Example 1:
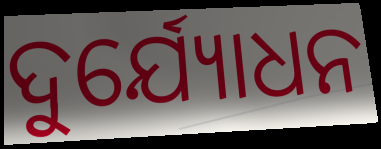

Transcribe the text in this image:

ଦୁର୍ଯ୍ୟୋଧନ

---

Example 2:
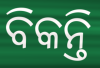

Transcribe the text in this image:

ବିକନ୍ତି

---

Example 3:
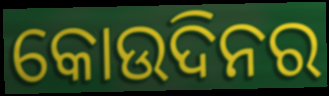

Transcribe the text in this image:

କୋଉଦିନର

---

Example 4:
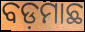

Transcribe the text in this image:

ବଡ଼ମାଛ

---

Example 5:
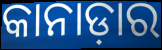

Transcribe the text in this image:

କାନାଡ଼ାର